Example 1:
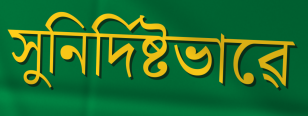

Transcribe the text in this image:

সুনিৰ্দিষ্টভাৱে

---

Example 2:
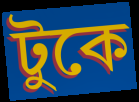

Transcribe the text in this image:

টুকে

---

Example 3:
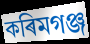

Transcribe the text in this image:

কৰিমগঞ্জ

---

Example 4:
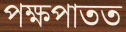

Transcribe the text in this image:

পক্ষপাতত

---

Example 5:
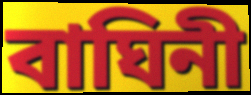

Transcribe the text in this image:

বাঘিনী